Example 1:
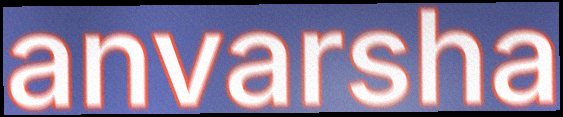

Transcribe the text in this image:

anvarsha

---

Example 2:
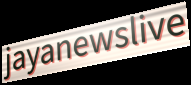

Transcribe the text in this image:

jayanewslive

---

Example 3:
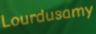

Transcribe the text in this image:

Lourdusamy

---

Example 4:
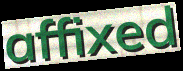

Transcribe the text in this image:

affixed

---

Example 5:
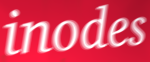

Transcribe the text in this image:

inodes